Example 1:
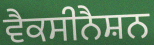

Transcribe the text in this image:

ਵੈਕਸੀਨੈਸ਼ਨ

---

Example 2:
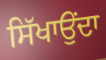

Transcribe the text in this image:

ਸਿੱਖਾਉਂਦਾ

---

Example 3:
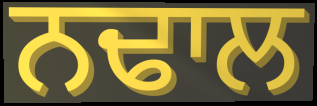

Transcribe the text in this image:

ਨਢਾਲ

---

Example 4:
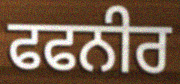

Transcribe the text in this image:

ਫਫਨੀਰ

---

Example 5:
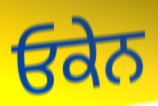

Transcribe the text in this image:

ਓਕੇਨ